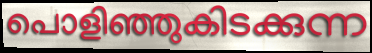
പൊളിഞ്ഞുകിടക്കുന്ന